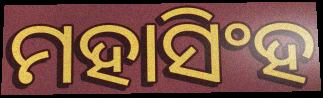
ମହାସିଂହ